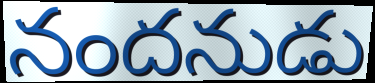
నందనుడు